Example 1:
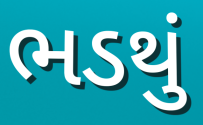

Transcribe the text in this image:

ભડથું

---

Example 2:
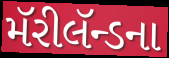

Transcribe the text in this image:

મૅરીલૅન્ડના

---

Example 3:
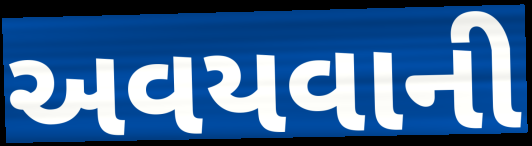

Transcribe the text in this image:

અવયવાની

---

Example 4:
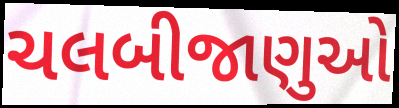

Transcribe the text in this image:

ચલબીજાણુઓ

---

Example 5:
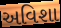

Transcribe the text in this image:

અવિશા